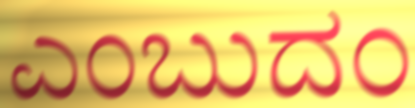
ಎಂಬುದಂ